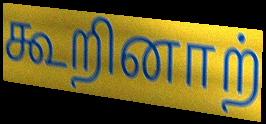
கூறினாற்